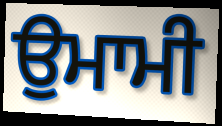
ਉਮਾਮੀ